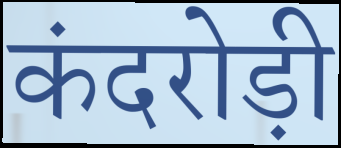
कंदरोड़ी